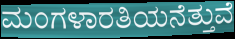
ಮಂಗಳಾರತಿಯನೆತ್ತುವೆ